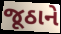
જૂઠાને